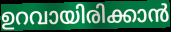
ഉറവായിരിക്കാൻ